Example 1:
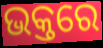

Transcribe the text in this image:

ଭକ୍ତରେ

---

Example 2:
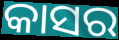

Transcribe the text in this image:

କାସର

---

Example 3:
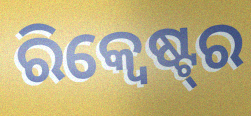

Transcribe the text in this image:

ରିକ୍ୱେଷ୍ଟ୍‌ର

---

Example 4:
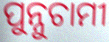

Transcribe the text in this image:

ପୁନ୍ନୁଚାମୀ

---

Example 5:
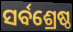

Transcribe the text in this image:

ସର୍ବଶ୍ରେଷ୍ଠ